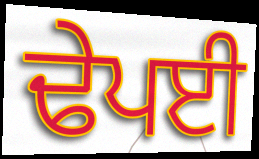
ਢੇਪਈ